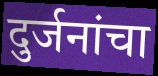
दुर्जनांचा